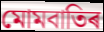
মোমবাতিৰ